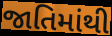
જાતિમાંથી